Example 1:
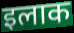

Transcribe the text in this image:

इलाक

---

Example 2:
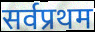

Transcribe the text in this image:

सर्वप्रथम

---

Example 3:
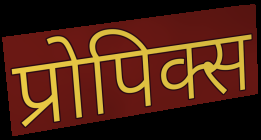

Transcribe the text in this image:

प्रोपिक्स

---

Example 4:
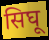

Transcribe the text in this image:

सिघू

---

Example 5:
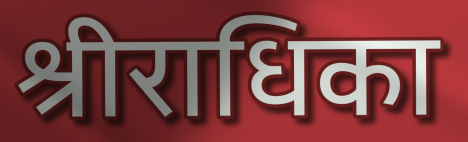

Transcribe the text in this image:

श्रीराधिका